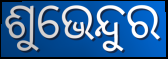
ଶୁଭେନ୍ଦୁର